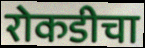
रोकडीचा